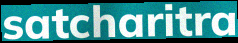
satcharitra